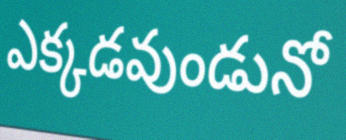
ఎక్కడవుండునో